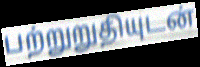
பற்றுறுதியுடன்